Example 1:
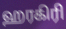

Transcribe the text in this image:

ஹரகிரி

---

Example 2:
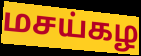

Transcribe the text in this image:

மசய்கழ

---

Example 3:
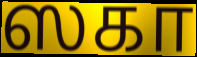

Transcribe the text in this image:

ஸகா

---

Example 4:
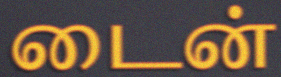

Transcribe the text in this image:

டைன்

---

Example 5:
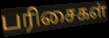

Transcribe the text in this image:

பரிசைகள்